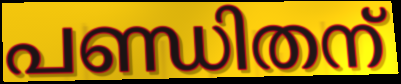
പണ്ഡിതന്